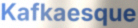
Kafkaesque